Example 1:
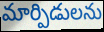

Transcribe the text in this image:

మార్పిడులను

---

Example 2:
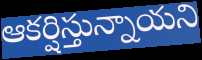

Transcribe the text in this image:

ఆకర్షిస్తున్నాయని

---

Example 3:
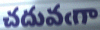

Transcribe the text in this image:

చదువఁగా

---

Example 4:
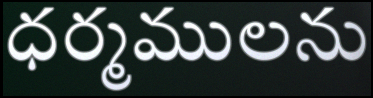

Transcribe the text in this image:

ధర్మములను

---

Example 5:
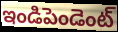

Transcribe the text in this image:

ఇండిపెండెంట్